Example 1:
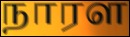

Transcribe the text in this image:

நாரள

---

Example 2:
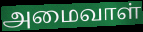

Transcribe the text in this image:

அமைவாள்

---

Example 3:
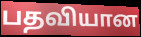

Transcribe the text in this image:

பதவியான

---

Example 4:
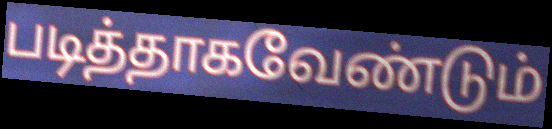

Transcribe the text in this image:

படித்தாகவேண்டும்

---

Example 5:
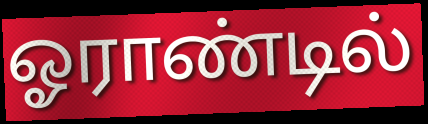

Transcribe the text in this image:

ஓராண்டில்